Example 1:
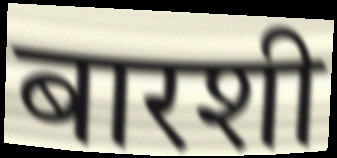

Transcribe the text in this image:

बारशी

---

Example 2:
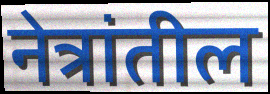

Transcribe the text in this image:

नेत्रांतील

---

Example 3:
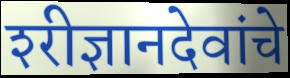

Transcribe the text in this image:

श्रीज्ञानदेवांचे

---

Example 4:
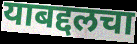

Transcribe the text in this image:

याबद्दलचा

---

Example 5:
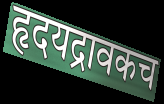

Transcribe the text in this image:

हृदयद्रावकच